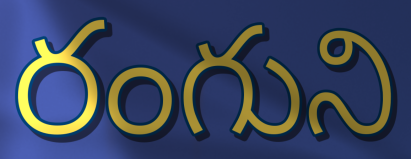
రంగుని